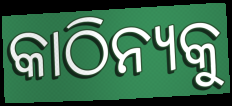
କାଠିନ୍ୟକୁ